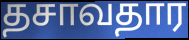
தசாவதார